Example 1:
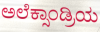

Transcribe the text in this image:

ಅಲೆಕ್ಸಾಂಡ್ರಿಯ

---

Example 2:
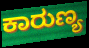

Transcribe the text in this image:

ಕಾರುಣ್ಯ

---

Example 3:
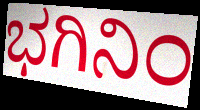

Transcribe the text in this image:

ಭಗಿನಿಂ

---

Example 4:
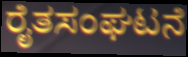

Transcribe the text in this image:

ರೈತಸಂಘಟನೆ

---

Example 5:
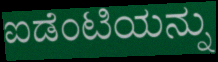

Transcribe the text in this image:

ಐಡೆಂಟಿಯನ್ನು